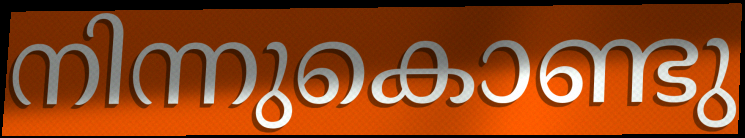
നിന്നുകൊണ്ടു